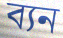
ব্যন